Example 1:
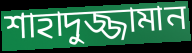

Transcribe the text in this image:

শাহাদুজ্জামান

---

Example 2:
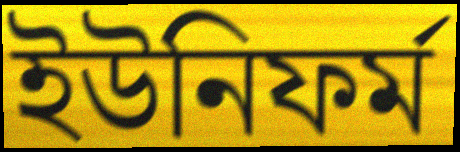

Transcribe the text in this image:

ইউনিফর্ম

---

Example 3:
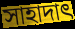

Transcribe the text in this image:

সাহাদাৎ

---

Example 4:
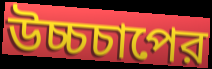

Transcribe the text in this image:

উচ্চচাপের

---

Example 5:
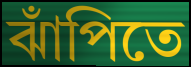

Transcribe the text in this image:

ঝাঁপিতে